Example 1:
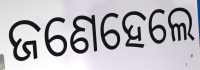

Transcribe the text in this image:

ଜଣେହେଲେ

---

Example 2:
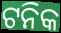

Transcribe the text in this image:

ଟନିକ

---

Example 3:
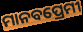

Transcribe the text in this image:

ମାନବପ୍ରେମୀ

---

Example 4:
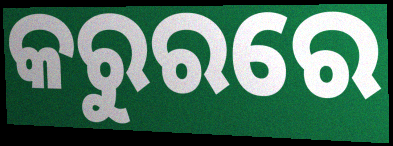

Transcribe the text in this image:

କରୁରରେ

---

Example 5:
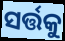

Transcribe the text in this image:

ସର୍ତ୍ତକୁ